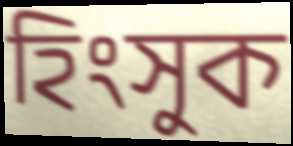
হিংসুক